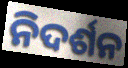
ନିଦର୍ଶନ